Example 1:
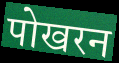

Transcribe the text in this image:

पोखरन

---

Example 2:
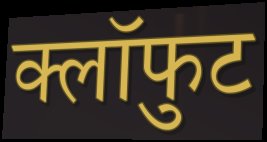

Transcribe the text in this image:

क्लॉफुट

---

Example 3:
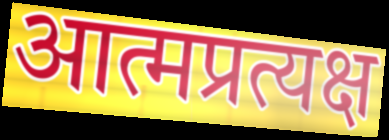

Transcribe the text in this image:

आत्मप्रत्यक्ष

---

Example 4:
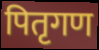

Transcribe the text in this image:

पितृगण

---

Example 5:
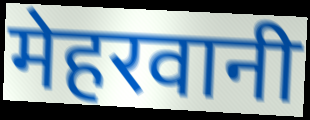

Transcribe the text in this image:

मेहरवानी